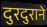
दुरदुराने